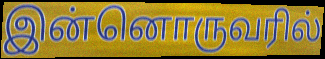
இன்னொருவரில்